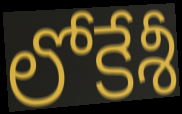
లోకేశీ